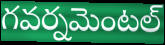
గవర్నమెంటల్